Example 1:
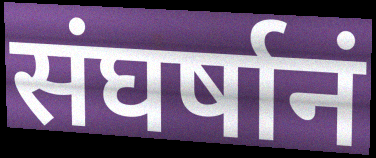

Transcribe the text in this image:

संघर्षानं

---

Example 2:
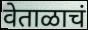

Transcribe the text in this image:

वेताळाचं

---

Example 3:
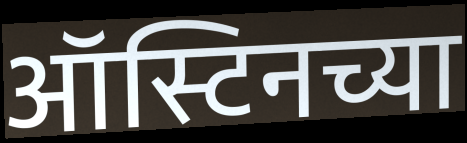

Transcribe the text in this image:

ऑस्टिनच्या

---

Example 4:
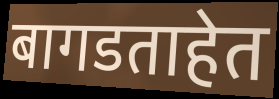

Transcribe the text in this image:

बागडताहेत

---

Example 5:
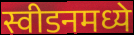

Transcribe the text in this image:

स्वीडनमध्ये